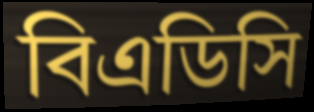
বিএডিসি